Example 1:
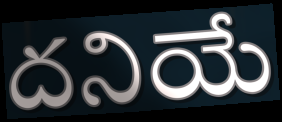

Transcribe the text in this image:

దనియే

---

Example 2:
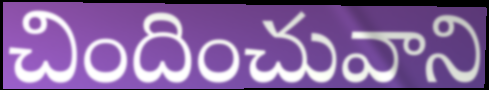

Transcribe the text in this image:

చిందించువాని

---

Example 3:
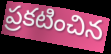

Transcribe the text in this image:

ప్రకటించిన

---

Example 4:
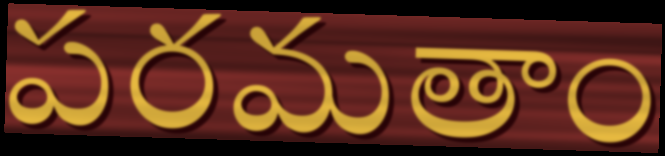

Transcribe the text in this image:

పరమతాం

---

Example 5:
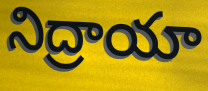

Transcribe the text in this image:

నిద్రాయా